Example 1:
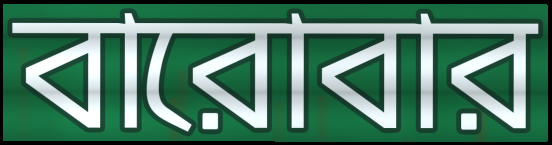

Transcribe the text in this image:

বারোবার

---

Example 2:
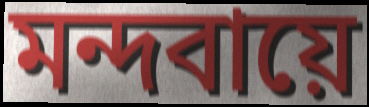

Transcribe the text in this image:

মন্দবায়ে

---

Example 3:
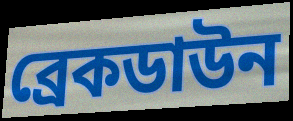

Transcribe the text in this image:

ব্রেকডাউন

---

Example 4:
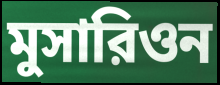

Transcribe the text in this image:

মুসারিওন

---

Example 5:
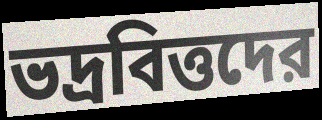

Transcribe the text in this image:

ভদ্রবিত্তদের